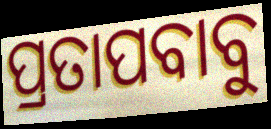
ପ୍ରତାପବାବୁ